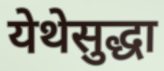
येथेसुद्धा